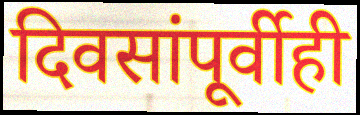
दिवसांपूर्वीही